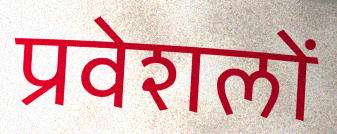
प्रवेशलों